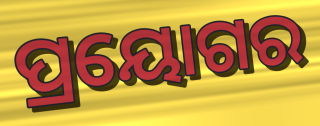
ପ୍ରୟୋଗର